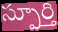
స్పూర్తి